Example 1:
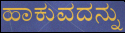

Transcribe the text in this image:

ಹಾಕುವದನ್ನು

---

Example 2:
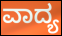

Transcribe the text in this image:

ವಾದ್ಯ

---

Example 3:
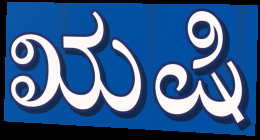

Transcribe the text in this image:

ಋಷಿ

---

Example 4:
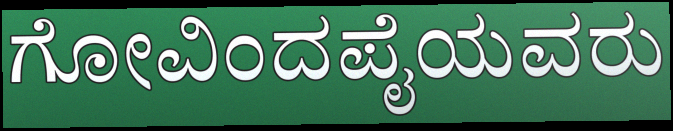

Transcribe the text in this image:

ಗೋವಿಂದಪೈಯವರು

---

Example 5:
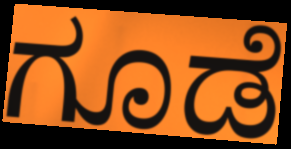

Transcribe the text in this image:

ಗೂಡೆ